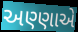
અણ્ણાએ